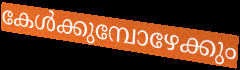
കേൾക്കുമ്പോഴേക്കും